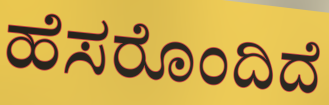
ಹೆಸರೊಂದಿದೆ